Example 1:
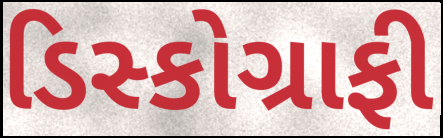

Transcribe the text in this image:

ડિસ્કોગ્રાફી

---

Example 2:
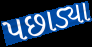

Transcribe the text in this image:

પછાડ્યા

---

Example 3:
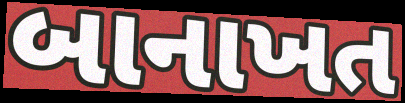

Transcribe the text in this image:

બાનાખત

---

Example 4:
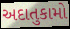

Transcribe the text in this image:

અદાતુકામો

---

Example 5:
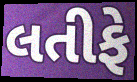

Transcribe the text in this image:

લતીફે